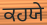
ਕਹਯੇ